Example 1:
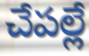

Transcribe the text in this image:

చేపల్లే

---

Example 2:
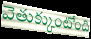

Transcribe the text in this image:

వెతుక్కుంటోంది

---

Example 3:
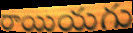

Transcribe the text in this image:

రాయియగు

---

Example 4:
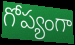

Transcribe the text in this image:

గోప్యంగా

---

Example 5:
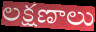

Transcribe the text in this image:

లక్షణాలు